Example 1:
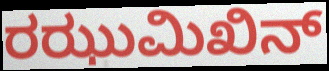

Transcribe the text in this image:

ರಝುಮಿಖಿನ್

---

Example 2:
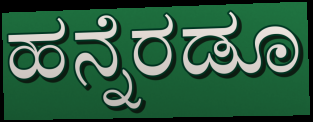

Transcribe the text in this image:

ಹನ್ನೆರಡೂ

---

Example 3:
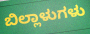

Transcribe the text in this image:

ಬಿಲ್ಲಾಳುಗಳು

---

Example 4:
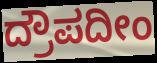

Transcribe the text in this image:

ದ್ರೌಪದೀಂ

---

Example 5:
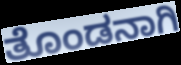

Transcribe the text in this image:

ತೊಂಡನಾಗಿ